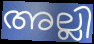
അല്ലി